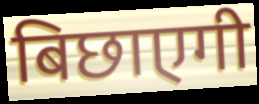
बिछाएगी